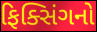
ફિક્સિંગનો